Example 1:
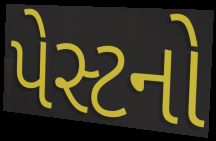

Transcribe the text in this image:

પેસ્ટનો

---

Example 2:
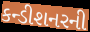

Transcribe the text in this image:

કન્ડીશનરની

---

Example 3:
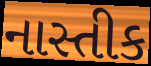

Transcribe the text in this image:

નાસ્તીક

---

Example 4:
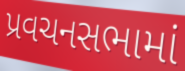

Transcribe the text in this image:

પ્રવચનસભામાં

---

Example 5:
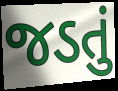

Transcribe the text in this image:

જડતું